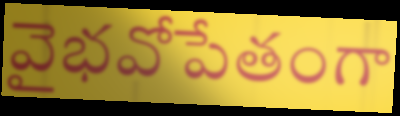
వైభవోపేతంగా